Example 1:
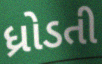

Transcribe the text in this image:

ધ્રોડતી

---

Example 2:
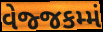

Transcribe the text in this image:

વેજ્જકમ્મં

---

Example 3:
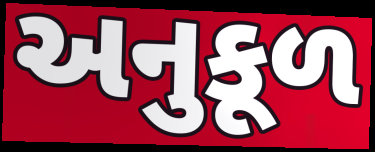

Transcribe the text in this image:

અનુકૂળ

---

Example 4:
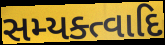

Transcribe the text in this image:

સમ્યક્ત્વાદિ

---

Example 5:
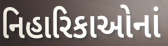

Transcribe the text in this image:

નિહારિકાઓનાં